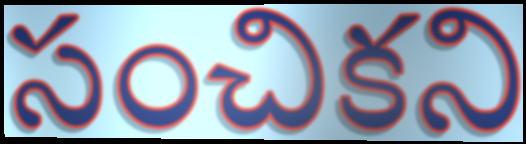
సంచికని